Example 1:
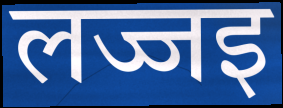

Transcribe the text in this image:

लज्जइ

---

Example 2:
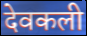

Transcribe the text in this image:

देवकली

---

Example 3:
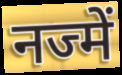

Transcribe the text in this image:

नज्में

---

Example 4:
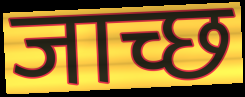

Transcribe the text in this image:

जाच्छ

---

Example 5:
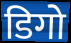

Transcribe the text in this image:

डिगो